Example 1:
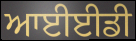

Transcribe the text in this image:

ਆਈਈਡੀ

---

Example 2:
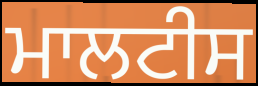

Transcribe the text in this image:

ਮਾਲਟੀਸ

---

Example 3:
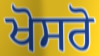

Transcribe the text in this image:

ਖੋਸਰੋ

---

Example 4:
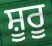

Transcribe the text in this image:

ਸ਼ੂਰੂ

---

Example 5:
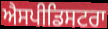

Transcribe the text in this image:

ਐਸਪੀਡਿਸਟਰਾ